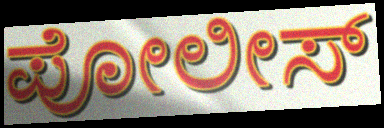
ಪೋಲೀಸ್